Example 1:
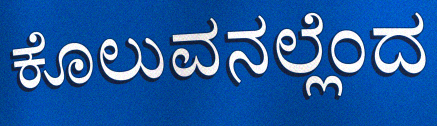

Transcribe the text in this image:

ಕೊಲುವನಲ್ಲೆಂದ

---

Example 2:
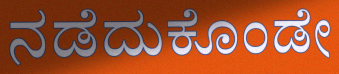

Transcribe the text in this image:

ನಡೆದುಕೊಂಡೇ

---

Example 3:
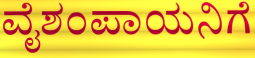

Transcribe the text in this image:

ವೈಶಂಪಾಯನಿಗೆ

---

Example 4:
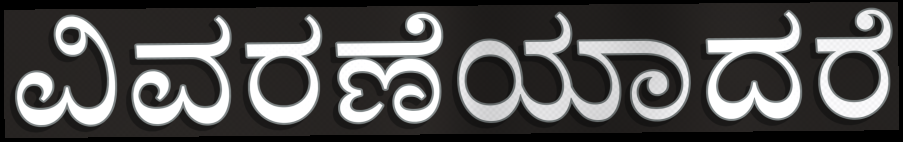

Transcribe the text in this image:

ವಿವರಣೆಯಾದರೆ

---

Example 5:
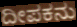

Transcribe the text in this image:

ದೀಪಕನು